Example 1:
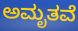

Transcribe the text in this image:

ಅಮೃತವೆ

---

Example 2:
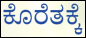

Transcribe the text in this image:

ಕೊರೆತಕ್ಕೆ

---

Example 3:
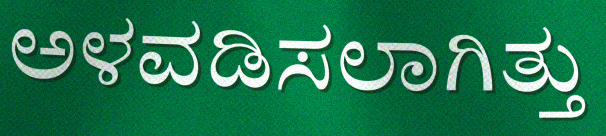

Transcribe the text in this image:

ಅಳವಡಿಸಲಾಗಿತ್ತು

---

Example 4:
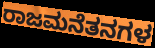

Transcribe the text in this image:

ರಾಜಮನೆತನಗಳ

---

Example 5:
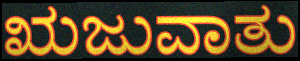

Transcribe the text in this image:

ಋಜುವಾತು